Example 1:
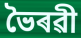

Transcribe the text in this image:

ভৈৰৱী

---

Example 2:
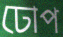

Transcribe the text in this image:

ঢোপ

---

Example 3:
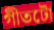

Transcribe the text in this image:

গীতটো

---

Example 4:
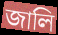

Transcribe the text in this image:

জালি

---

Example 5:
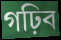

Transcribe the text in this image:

গঢ়িব